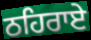
ਠਹਿਰਾਏ